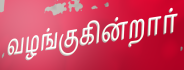
வழங்குகின்றார்